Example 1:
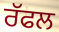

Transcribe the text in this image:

ਰੱਫਲ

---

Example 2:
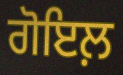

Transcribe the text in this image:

ਗੋਇਲ਼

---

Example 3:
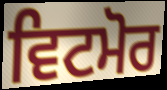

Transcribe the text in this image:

ਵਿਟਮੋਰ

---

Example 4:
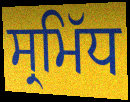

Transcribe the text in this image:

ਸ੍ਰਮਿੱਧ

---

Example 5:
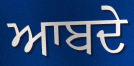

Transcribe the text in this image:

ਆਬਦੇ